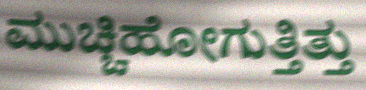
ಮುಚ್ಚಿಹೋಗುತ್ತಿತ್ತು